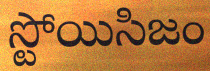
స్టోయిసిజం